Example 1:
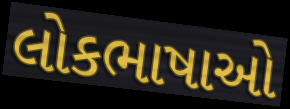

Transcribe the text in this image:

લોકભાષાઓ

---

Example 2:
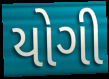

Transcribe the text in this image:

યોગી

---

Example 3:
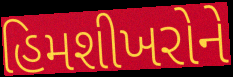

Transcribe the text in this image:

હિમશીખરોને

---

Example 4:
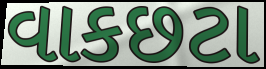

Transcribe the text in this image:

વાકછટા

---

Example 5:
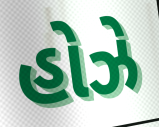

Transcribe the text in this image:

હોઝે